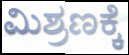
ಮಿಶ್ರಣಕ್ಕೆ